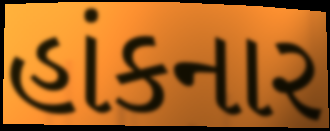
હાંકનાર